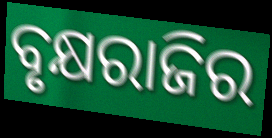
ବୃକ୍ଷରାଜିର